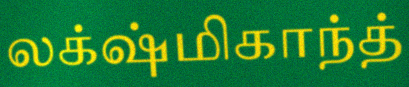
லக்‌ஷ்மிகாந்த்